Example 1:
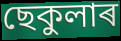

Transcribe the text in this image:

ছেকুলাৰ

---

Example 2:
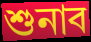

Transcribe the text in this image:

শুনাব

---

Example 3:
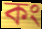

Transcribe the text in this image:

কং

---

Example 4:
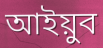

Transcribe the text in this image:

আইয়ুব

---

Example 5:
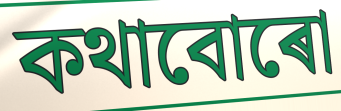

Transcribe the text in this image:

কথাবোৰো